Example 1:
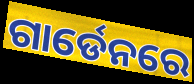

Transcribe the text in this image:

ଗାର୍ଡେନରେ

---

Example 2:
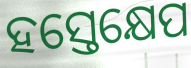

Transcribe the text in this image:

ହସ୍ତେକ୍ଷେପ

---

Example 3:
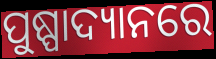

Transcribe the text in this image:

ପୁଷ୍ପାଦ୍ୟାନରେ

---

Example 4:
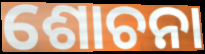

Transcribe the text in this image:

ଶୋଚନା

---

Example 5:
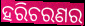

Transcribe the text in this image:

ହରିଚରଣର